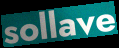
sollave